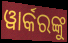
ୱାର୍କରଙ୍କୁ